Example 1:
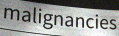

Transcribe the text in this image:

malignancies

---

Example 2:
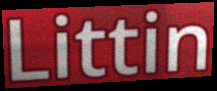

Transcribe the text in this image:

Littin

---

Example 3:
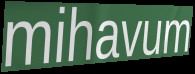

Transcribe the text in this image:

mihavum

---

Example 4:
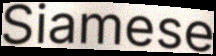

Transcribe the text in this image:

Siamese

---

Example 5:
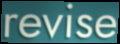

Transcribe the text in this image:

revise